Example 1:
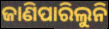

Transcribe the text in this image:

ଜାଣିପାରିଲୁନି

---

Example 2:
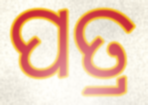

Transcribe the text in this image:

ପତ୍ର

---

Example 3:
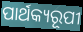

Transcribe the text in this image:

ପାର୍ଥକ୍ୟରୂପୀ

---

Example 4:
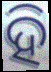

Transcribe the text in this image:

ହି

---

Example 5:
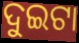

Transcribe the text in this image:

ଦୁଇଟା